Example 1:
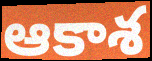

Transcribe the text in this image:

ఆకాశ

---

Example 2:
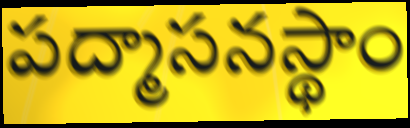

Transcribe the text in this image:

పద్మాసనస్థాం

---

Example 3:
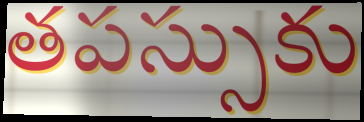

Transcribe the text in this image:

తపస్సుకు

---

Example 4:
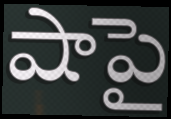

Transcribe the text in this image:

షాపై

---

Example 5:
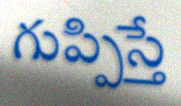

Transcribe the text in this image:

గుప్పిస్తే